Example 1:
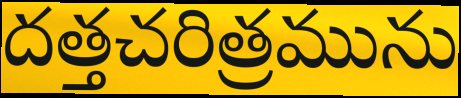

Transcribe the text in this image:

దత్తచరిత్రమును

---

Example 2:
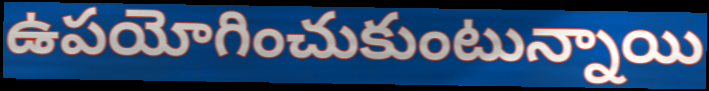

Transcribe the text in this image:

ఉపయోగించుకుంటున్నాయి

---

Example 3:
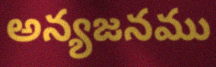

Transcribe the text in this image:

అన్యజనము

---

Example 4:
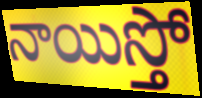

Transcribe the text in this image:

నాయిస్తో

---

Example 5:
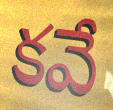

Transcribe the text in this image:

కవే